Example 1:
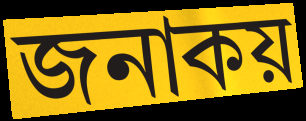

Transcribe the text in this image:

জনাকয়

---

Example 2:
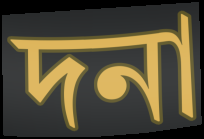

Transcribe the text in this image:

দনা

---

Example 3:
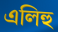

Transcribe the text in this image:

এলিহু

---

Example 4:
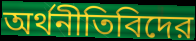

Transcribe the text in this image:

অর্থনীতিবিদের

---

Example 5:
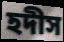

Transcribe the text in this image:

হদীস